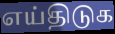
எய்திடுக